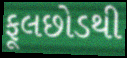
ફૂલછોડથી